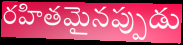
రహితమైనప్పుడు